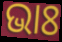
ଭାଃ